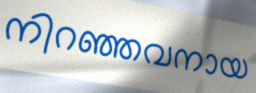
നിറഞ്ഞവനായ